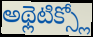
అథ్లెటిక్స్లో